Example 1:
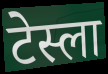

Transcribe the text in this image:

टेस्ला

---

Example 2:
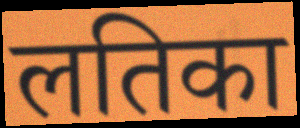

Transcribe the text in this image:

लतिका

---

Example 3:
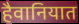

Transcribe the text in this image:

हैवानियात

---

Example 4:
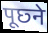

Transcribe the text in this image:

पूछ्ने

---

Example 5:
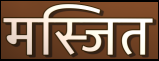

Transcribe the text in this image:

मस्जित